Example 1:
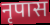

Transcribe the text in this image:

नृपास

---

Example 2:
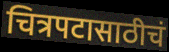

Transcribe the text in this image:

चित्रपटासाठीचं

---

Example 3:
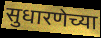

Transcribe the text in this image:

सुधारणेच्या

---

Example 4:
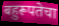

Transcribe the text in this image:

बहुरूपतेचा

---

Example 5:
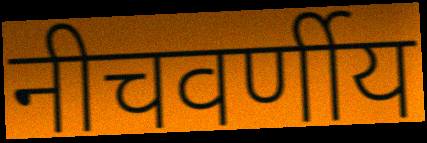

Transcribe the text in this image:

नीचवर्णीय